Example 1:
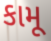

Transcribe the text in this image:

કામૂ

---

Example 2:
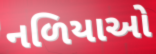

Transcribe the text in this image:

નળિયાઓ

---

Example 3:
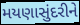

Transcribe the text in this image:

મયણાસુંદરીને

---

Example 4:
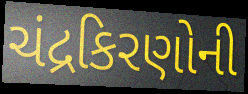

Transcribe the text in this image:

ચંદ્રકિરણોની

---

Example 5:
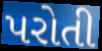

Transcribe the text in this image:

પરોતી